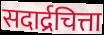
सदार्द्रचित्ता